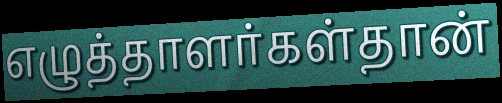
எழுத்தாளர்கள்தான்